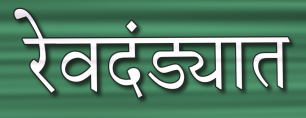
रेवदंड्यात